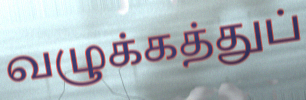
வழுக்கத்துப்